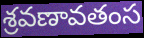
శ్రవణావతంస